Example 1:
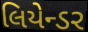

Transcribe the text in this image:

લિયેન્ડર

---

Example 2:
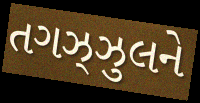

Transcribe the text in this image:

તગઝ્ઝુલને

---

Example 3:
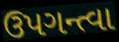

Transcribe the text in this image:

ઉપગન્ત્વા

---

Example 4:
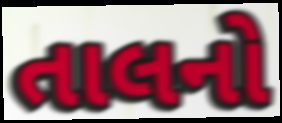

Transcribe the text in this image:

તાલનો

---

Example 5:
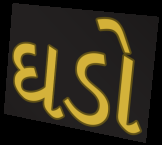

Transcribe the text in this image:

ઘડો